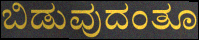
ಬಿಡುವುದಂತೂ